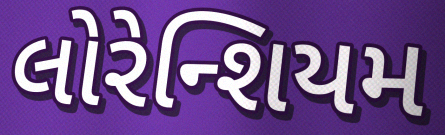
લોરેન્શિયમ